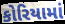
કોરિયામાં